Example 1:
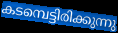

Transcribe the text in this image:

കടമ്പെട്ടിരിക്കുന്നു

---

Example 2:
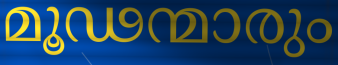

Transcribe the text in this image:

മൂഢന്മാരും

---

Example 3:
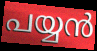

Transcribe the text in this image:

പയ്യൻ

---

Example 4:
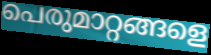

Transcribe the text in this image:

പെരുമാറ്റങ്ങളെ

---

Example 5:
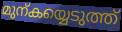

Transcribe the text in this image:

മുന്കയ്യെടുത്ത്